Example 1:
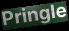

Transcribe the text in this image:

Pringle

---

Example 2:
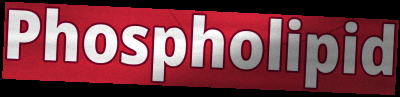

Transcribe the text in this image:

Phospholipid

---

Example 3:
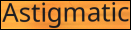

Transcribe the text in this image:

Astigmatic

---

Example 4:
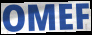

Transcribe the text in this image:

OMEF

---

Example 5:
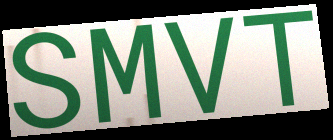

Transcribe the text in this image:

SMVT